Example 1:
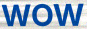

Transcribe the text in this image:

WOW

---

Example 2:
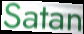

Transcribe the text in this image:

Satan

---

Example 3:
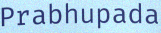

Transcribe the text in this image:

Prabhupada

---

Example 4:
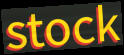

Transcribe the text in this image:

stock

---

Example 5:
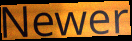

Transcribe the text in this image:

Newer